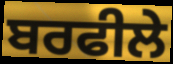
ਬਰਫੀਲੇ